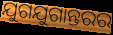
ଯୁଗଯୁଗାନ୍ତରର